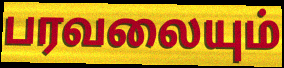
பரவலையும்